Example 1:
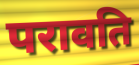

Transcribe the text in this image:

परावति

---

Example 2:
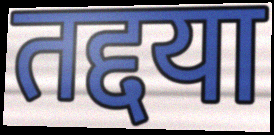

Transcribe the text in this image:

तद्दया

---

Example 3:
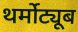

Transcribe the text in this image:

थर्मोट्यूब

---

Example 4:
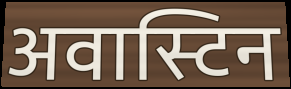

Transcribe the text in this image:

अवास्टिन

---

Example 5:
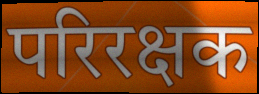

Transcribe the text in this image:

परिरक्षक